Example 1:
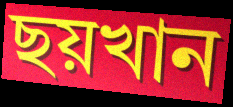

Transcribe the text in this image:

ছয়খান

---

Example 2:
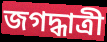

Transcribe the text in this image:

জগদ্ধাত্রী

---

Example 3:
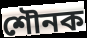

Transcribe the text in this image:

শৌনক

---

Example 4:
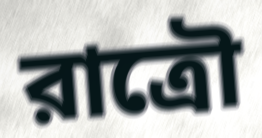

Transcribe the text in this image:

রাত্রৌ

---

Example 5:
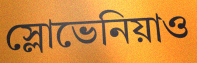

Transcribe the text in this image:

স্লোভেনিয়াও